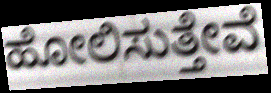
ಹೋಲಿಸುತ್ತೇವೆ